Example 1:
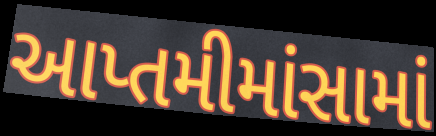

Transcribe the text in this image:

આપ્તમીમાંસામાં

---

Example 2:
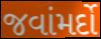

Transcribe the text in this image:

જવાંમર્દો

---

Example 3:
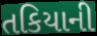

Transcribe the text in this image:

તકિયાની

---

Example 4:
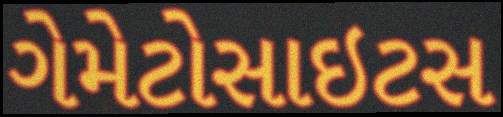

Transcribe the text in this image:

ગેમેટોસાઇટસ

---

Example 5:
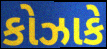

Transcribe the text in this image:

કોઝાકે